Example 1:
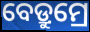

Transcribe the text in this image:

ବେଡ୍ରୁମ୍ରେ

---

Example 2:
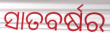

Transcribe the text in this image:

ସାତବର୍ଷର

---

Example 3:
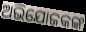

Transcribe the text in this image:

ଅଭିଯୋଜକଙ୍କ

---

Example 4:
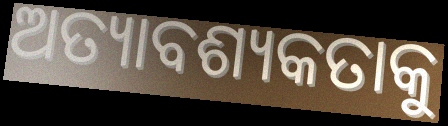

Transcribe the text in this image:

ଅତ୍ୟାବଶ୍ୟକତାକୁ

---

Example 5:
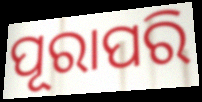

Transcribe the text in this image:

ପୂରାପରି